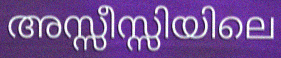
അസ്സീസ്സിയിലെ